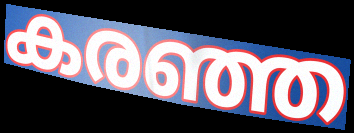
കരഞ്ഞ